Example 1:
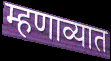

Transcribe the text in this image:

म्हणाव्यात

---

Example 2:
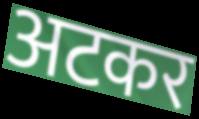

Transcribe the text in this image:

अटकर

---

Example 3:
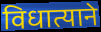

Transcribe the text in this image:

विधात्याने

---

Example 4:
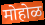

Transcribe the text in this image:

मोहोळ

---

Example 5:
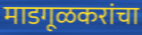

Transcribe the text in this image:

माडगूळकरांचा